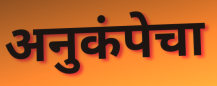
अनुकंपेचा